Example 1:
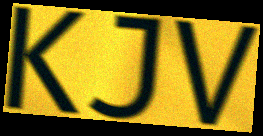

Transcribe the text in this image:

KJV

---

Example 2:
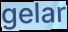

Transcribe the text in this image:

gelar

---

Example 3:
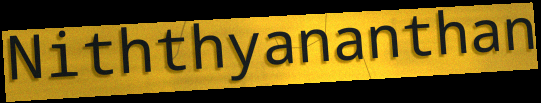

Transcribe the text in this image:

Niththyananthan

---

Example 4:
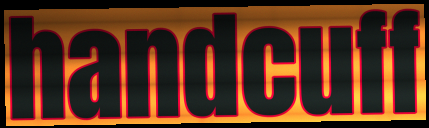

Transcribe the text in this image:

handcuff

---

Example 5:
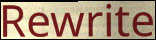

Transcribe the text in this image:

Rewrite